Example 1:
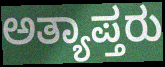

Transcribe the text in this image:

ಅತ್ಯಾಪ್ತರು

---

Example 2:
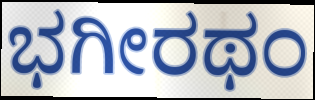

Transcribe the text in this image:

ಭಗೀರಥಂ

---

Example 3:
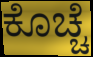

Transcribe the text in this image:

ಕೊಚ್ಚೆ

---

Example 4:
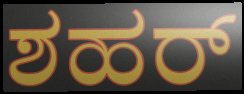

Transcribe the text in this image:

ಶಹರ್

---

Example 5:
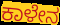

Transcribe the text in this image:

ಕಾಳೇನ